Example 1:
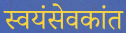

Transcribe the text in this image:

स्वयंसेवकांत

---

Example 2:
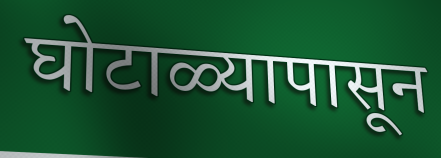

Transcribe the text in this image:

घोटाळ्यापासून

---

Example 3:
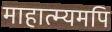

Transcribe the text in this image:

माहात्म्यमपि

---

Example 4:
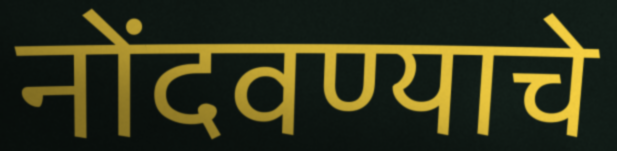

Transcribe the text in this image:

नोंदवण्याचे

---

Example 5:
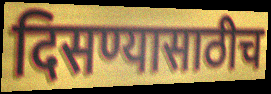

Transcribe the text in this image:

दिसण्यासाठीच